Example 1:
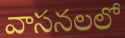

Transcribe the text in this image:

వాసనలలో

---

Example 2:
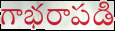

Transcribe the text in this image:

గాభరాపడి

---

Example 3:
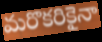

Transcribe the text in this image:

మరొకరికైనా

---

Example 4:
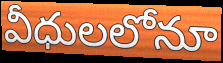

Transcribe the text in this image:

వీధులలోనూ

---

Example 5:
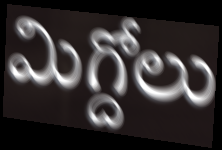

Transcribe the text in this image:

మిగ్దోలు